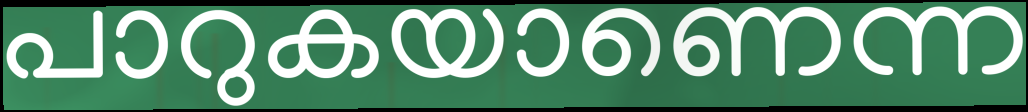
പാറുകയാണെന്ന